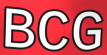
BCG